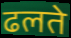
ढलते